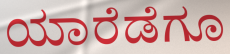
ಯಾರೆಡೆಗೂ